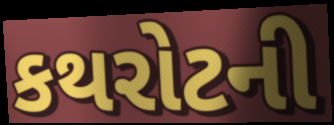
કથરોટની